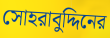
সোহরাবুদ্দিনের